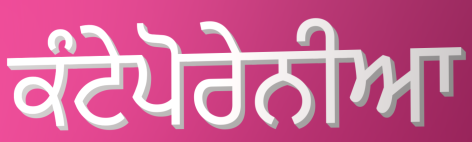
ਕੰਟੇਪੋਰੇਨੀਆ